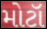
મોટૉ